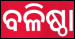
ବଳିଷ୍ଠା